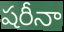
షరీనా